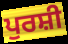
ਪੁਰਸ਼ੀ